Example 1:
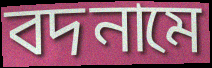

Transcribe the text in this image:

বদনামে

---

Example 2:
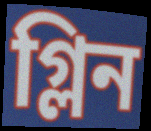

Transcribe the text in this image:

গ্লিন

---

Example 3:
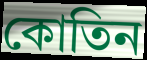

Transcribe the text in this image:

কোতিন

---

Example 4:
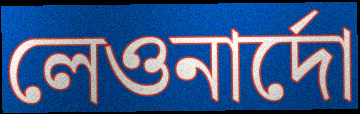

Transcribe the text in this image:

লেওনার্দো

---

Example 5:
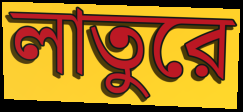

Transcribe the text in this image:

লাতুরে